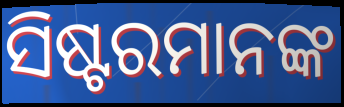
ସିଷ୍ଟରମାନଙ୍କ